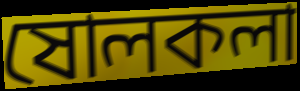
ষোলকলা